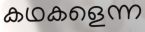
കഥകളെന്ന